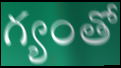
గ్యంతో